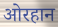
ओरहान